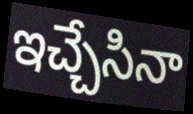
ఇచ్చేసినా